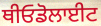
ਥੀਓਡੋਲਾਈਟ